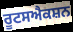
ਰੂਟਸਐਕਸ਼ਨ